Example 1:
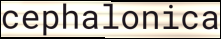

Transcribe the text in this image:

cephalonica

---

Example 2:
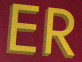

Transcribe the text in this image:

ER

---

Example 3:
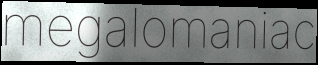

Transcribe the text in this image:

megalomaniac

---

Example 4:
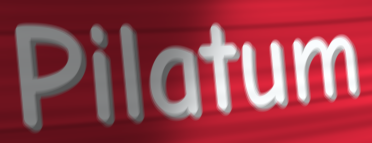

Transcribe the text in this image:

Pilatum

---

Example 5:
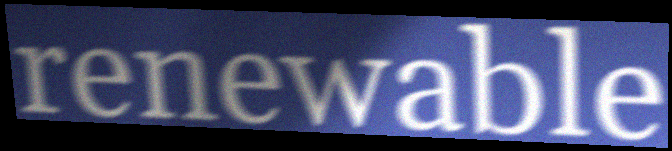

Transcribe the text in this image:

renewable